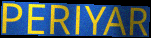
PERIYAR